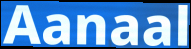
Aanaal